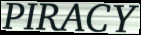
PIRACY